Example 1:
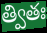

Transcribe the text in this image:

త్వితః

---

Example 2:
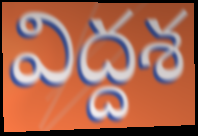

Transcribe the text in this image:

విద్దశ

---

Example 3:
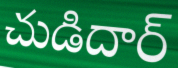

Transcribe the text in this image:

చుడిదార్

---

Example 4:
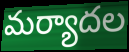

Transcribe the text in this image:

మర్యాదల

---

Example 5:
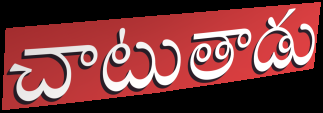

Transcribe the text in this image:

చాటుతాడు